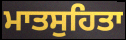
ਮਾਤਸੁਹਿਤਾ